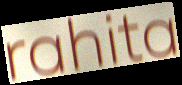
rahita